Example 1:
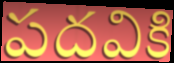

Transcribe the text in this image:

పదవికి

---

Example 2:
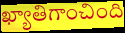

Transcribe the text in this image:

ఖ్యాతిగాంచింది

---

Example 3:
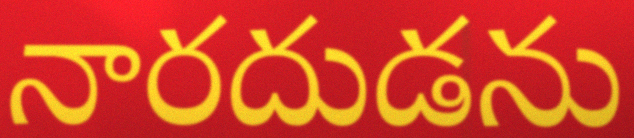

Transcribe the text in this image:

నారదుడను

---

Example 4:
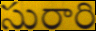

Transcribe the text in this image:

సురారి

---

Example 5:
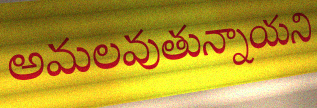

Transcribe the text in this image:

అమలవుతున్నాయని